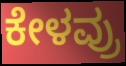
ಕೇಳವ್ರು